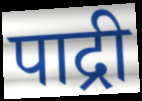
पाद्री